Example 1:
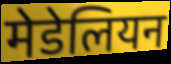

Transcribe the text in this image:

मेडेलियन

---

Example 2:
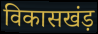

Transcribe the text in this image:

विकासखंड़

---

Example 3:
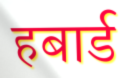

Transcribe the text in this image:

हबार्ड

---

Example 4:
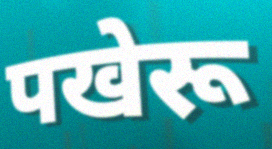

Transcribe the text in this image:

पखेरू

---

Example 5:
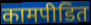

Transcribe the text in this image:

कामपीडित